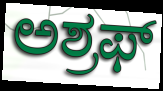
ಅಶ್ರಫ್